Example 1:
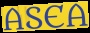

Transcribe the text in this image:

ASEA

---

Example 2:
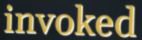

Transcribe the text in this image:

invoked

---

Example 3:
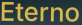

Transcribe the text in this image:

Eterno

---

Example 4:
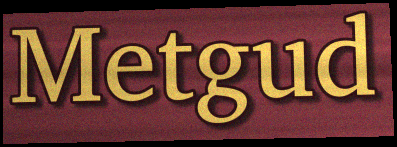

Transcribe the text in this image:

Metgud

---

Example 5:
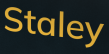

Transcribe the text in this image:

Staley